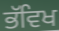
ਭੱਵਿਖ